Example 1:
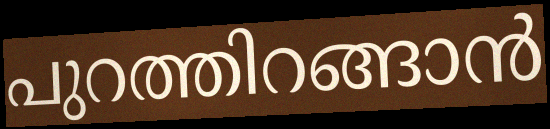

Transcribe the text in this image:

പുറത്തിറങ്ങാൻ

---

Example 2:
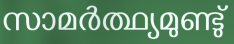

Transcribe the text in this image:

സാമർത്ഥ്യമുണ്ടു്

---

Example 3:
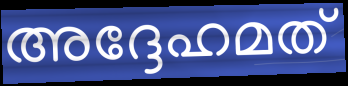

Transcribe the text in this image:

അദ്ദേഹമത്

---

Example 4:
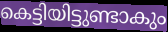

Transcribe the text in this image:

കെട്ടിയിട്ടുണ്ടാകും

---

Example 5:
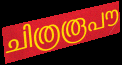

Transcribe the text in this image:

ചിത്രരൂപൗ